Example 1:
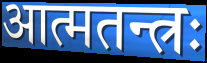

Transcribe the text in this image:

आत्मतन्त्रः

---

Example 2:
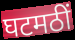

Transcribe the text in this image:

घटमठीं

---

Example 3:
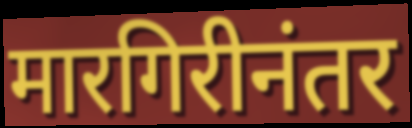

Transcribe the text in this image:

मारगिरीनंतर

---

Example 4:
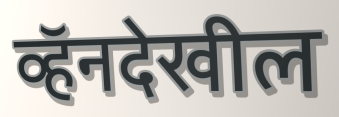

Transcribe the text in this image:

व्हॅनदेखील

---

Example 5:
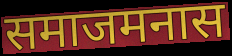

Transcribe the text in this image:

समाजमनास